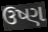
ઉષ્ણ